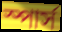
স্পার্স